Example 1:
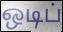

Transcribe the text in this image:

ஒடிப்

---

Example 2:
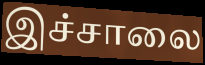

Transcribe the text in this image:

இச்சாலை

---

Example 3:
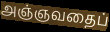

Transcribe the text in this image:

அஞ்ஞவதைப்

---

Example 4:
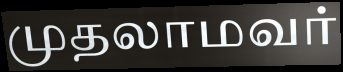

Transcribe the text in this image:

முதலாமவர்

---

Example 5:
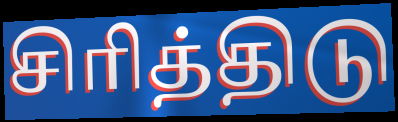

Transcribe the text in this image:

சிரித்திடு